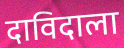
दाविदाला